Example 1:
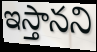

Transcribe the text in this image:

ఇస్తానని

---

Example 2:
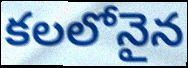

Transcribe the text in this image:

కలలోనైన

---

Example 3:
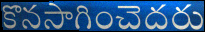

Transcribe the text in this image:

కొనసాగించెదరు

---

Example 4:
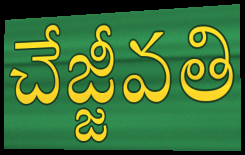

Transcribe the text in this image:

చేజ్జీవతి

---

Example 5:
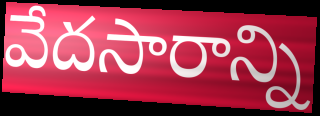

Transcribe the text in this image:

వేదసారాన్ని